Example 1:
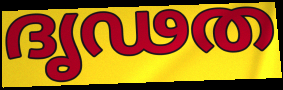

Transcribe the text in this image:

ദൃഢത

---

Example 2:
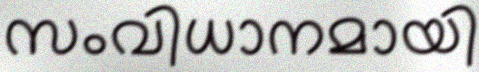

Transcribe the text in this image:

സംവിധാനമായി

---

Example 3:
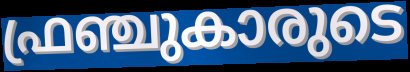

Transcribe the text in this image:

ഫ്രഞ്ചുകാരുടെ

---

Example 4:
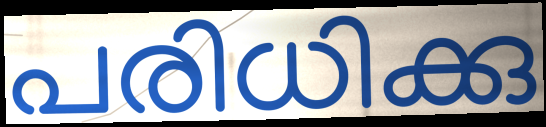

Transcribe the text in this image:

പരിധിക്കു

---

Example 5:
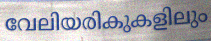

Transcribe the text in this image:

വേലിയരികുകളിലും